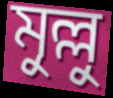
মুল্লু